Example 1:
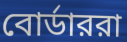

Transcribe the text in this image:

বোর্ডাররা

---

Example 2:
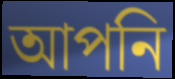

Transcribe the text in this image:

আপনি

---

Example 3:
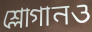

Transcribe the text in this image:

শ্লোগানও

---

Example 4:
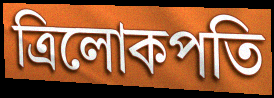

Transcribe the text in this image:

ত্রিলোকপতি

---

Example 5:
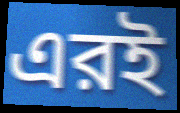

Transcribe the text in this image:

এরই